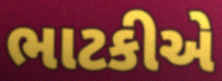
ભાટકીએ